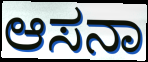
ಆಸನಾ